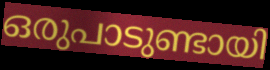
ഒരുപാടുണ്ടായി